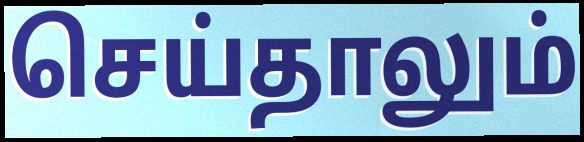
செய்தாலும்